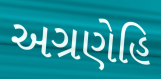
અગ્રણેહિ